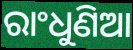
ରାଂଧୁଣିଆ